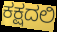
ಕಕ್ಷದಲಿ